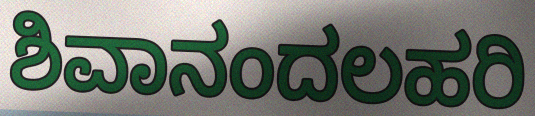
ಶಿವಾನಂದಲಹರಿ